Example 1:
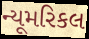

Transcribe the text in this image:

ન્યૂમરિકલ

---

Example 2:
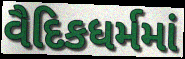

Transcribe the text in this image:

વૈદિકધર્મમાં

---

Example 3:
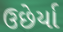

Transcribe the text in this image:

ઉછેર્યા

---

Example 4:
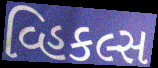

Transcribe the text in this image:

વ્હિકલ્સ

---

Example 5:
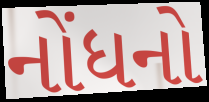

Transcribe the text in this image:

નોંધનો